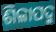
ଶିଳାପଦ୍ମ